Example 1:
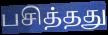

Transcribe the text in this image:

பசித்தது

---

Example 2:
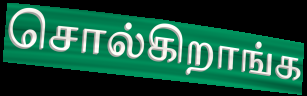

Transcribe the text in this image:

சொல்கிறாங்க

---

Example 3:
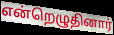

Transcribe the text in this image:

என்றெழுதினார்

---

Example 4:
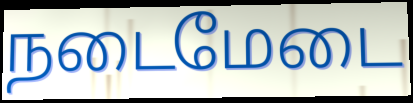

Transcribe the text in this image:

நடைமேடை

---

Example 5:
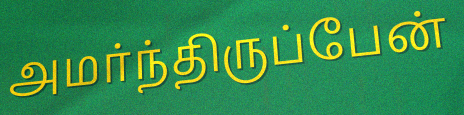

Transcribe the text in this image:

அமர்ந்திருப்பேன்